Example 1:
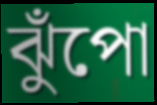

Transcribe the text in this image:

ঝুঁপো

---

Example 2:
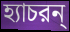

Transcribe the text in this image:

হ্যাচরন্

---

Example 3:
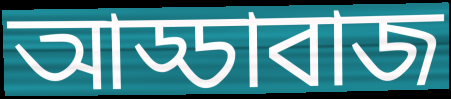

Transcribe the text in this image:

আড্ডাবাজ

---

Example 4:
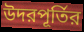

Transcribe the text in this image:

উদরপূর্তির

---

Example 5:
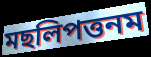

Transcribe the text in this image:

মছলিপত্তনম